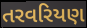
તરવરિયણ